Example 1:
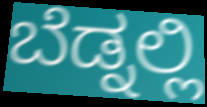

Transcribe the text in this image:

ಬೆಡ್ನಲ್ಲಿ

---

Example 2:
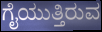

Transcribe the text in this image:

ಗೈಯುತ್ತಿರುವ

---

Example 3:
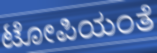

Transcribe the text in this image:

ಟೋಪಿಯಂತೆ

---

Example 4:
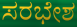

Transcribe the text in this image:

ಸರಭೇಶ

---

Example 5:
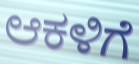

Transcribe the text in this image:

ಆಕಳಿಗೆ